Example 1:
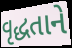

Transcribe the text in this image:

વૃદ્ધતાને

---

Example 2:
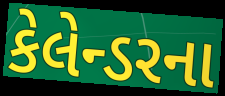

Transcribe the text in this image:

કેલેન્ડરના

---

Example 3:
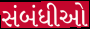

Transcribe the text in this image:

સંબંધીઓ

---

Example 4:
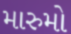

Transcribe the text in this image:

મારુમો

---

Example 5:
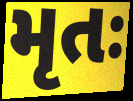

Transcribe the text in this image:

મૃતઃ